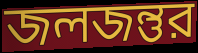
জলজন্তুর